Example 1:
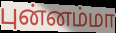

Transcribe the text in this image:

புன்னம்மா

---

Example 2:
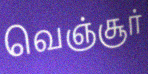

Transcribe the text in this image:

வெஞ்சூர்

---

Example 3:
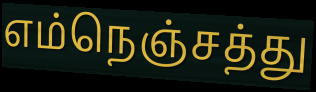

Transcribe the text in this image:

எம்நெஞ்சத்து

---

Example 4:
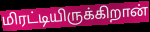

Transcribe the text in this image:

மிரட்டியிருக்கிறான்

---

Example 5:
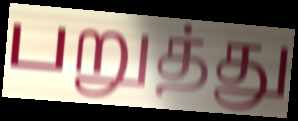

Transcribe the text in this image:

பறுத்து